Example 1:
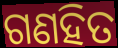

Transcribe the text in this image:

ଗଣହିତ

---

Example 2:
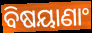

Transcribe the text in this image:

ବିଷୟାଣାଂ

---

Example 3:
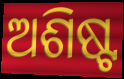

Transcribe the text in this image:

ଅଶିଷ୍ଟ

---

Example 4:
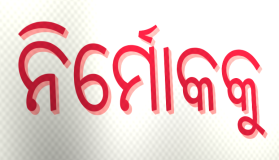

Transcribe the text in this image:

ନିର୍ମୋକକୁ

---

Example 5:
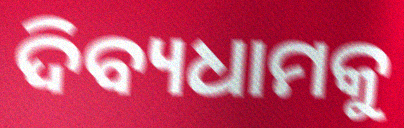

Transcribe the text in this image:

ଦିବ୍ୟଧାମକୁ